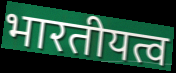
भारतीयत्व